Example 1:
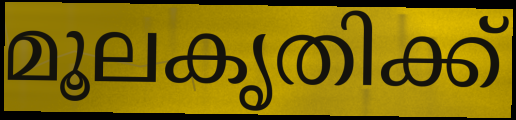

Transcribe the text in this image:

മൂലകൃതിക്ക്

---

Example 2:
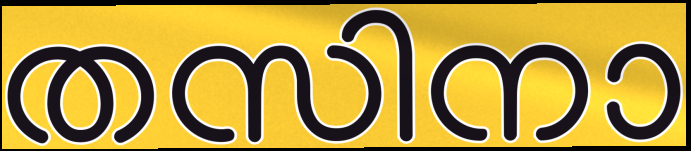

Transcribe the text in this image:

തസിനാ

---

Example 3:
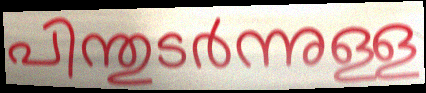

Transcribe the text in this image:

പിന്തുടർന്നുള്ള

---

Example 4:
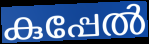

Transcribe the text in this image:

കുപ്പേൽ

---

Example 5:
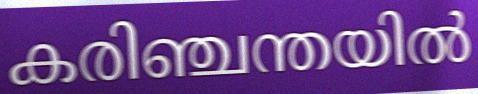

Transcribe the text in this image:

കരിഞ്ചന്തയിൽ